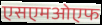
एसएमओएफ